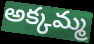
అక్కమ్మ